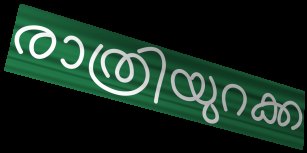
രാത്രിയുറക്ക